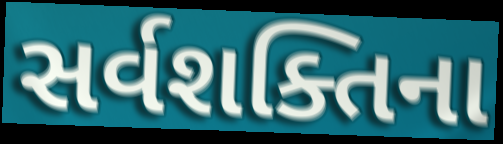
સર્વશક્તિના